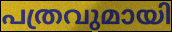
പത്രവുമായി